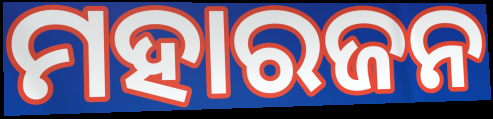
ମହାରଜନ